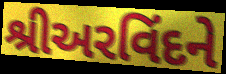
શ્રીઅરવિંદને